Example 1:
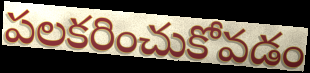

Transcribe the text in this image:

పలకరించుకోవడం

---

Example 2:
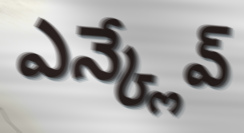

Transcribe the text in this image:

ఎన్క్లేవ్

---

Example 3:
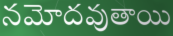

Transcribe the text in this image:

నమోదవుతాయి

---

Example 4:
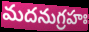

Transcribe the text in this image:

మదనుగ్రహః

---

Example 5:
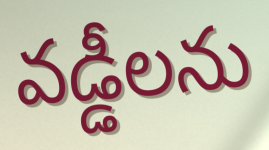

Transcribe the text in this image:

వడ్డీలను